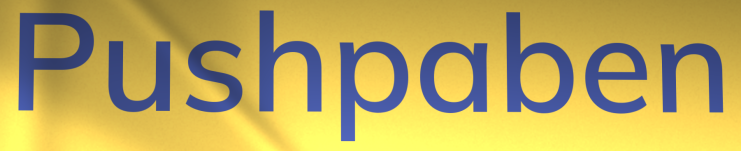
Pushpaben